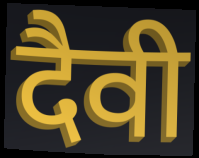
दैवी